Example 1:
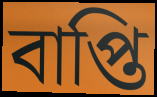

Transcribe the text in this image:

বাপ্তি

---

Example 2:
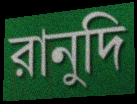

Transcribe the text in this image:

রানুদি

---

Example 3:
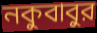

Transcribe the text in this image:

নকুবাবুর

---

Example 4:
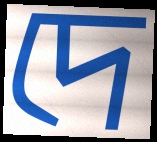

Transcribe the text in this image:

দে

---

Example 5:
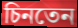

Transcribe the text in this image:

চিনতেন